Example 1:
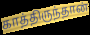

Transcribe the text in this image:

காத்திருந்தான்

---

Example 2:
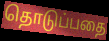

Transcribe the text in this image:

தொடுப்பதை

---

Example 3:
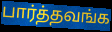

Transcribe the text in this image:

பார்த்தவங்க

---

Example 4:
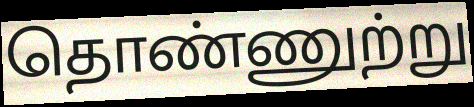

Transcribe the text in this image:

தொண்ணுற்று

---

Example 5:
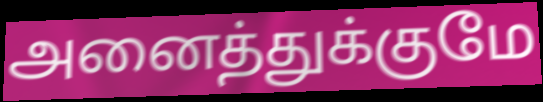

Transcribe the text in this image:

அனைத்துக்குமே